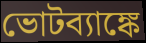
ভোটব্যাঙ্কে